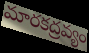
మారకద్రవ్యం